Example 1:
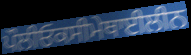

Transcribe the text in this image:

ਪੌਲੀਓਕਸੀਮੇਥਾਈਲੀਨ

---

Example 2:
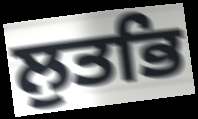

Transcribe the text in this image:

ਲੁਤਭਿ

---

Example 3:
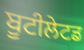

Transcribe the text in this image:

ਬੂਟੀਲੇਟਡ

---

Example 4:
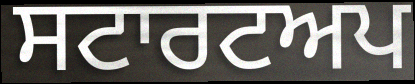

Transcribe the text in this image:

ਸਟਾਰਟਅਪ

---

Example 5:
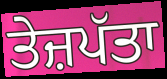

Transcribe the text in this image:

ਤੇਜ਼ਪੱਤਾ